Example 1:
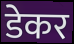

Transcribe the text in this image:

डेकर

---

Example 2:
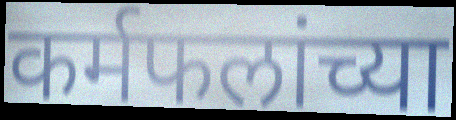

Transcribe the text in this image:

कर्मफलांच्या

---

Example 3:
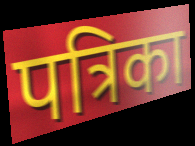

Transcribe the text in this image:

पत्रिका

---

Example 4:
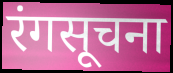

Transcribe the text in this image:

रंगसूचना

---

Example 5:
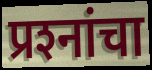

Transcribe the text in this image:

प्रश्‍नांचा